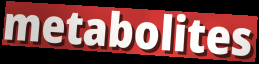
metabolites